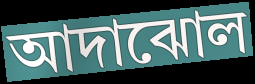
আদাঝোল